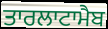
ਤਾਰਲਾਟਾਮੈਬ